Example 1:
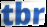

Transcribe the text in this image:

tbr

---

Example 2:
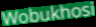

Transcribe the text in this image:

Wobukhosi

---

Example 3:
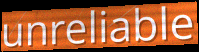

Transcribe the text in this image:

unreliable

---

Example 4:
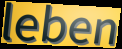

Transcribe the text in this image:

leben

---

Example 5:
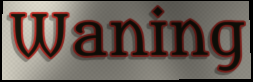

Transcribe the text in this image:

Waning